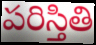
పరిస్తితి